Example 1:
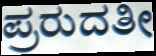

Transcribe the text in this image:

ಪ್ರರುದತೀ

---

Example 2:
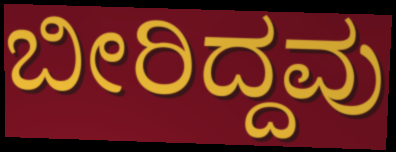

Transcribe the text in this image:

ಬೀರಿದ್ದವು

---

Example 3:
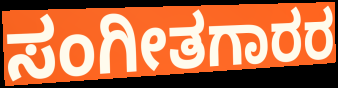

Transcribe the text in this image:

ಸಂಗೀತಗಾರರ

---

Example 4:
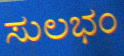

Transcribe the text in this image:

ಸುಲಭಂ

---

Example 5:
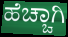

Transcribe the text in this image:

ಹೆಚ್ಚಾಗಿ